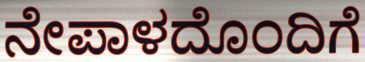
ನೇಪಾಳದೊಂದಿಗೆ